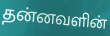
தன்னவளின்